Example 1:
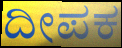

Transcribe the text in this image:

ದೀಪಕ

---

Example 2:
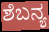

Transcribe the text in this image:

ಶೆಬನ್ಯ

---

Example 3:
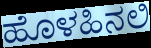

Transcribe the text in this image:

ಹೊಳಹಿನಲಿ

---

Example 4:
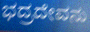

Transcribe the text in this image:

ಭದ್ರದೇವನು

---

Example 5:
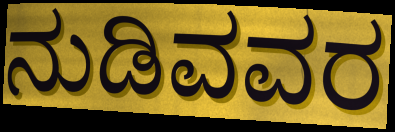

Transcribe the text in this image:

ನುಡಿವವರ